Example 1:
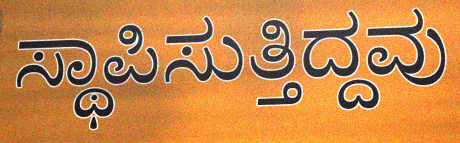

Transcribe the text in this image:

ಸ್ಥಾಪಿಸುತ್ತಿದ್ದವು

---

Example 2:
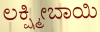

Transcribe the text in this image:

ಲಕ್ಷ್ಮೀಬಾಯಿ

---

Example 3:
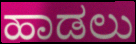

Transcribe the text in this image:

ಹಾಡಲು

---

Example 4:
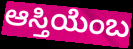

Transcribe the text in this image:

ಆಸ್ತಿಯೆಂಬ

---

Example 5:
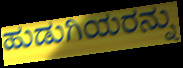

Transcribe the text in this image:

ಹುಡುಗಿಯರನ್ನು